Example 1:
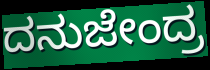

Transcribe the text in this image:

ದನುಜೇಂದ್ರ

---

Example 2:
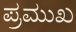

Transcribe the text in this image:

ಪ್ರಮುಖ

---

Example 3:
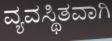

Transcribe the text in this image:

ವ್ಯವಸ್ಥಿತವಾಗಿ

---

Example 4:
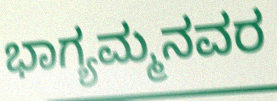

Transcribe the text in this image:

ಭಾಗ್ಯಮ್ಮನವರ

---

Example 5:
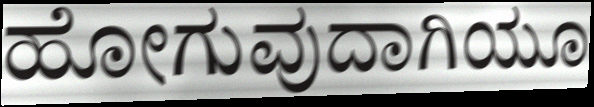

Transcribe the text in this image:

ಹೋಗುವುದಾಗಿಯೂ